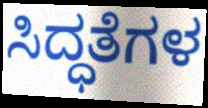
ಸಿದ್ಧತೆಗಳ